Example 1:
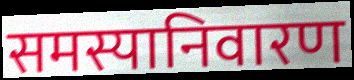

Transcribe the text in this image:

समस्यानिवारण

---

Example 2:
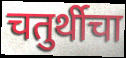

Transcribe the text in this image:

चतुर्थीचा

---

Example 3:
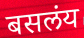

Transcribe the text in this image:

बसलंय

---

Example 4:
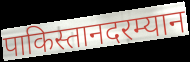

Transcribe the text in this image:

पाकिस्तानदरम्यान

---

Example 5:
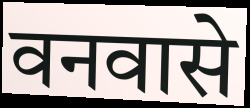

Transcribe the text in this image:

वनवासे